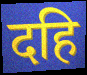
दहि